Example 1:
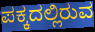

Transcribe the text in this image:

ಪಕ್ಕದಲ್ಲಿರುವ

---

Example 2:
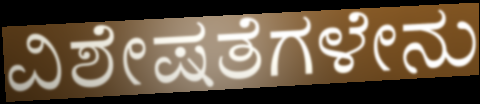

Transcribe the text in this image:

ವಿಶೇಷತೆಗಳೇನು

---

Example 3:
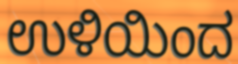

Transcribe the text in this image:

ಉಳಿಯಿಂದ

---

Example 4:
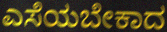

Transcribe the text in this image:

ಎಸೆಯಬೇಕಾದ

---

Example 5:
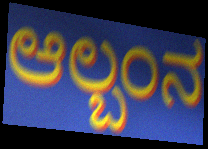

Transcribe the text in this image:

ಆಲ್ಬಂನ